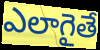
ఎలాగైతే